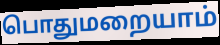
பொதுமறையாம்